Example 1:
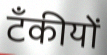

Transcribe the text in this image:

टँकीयों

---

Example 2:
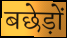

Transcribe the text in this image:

बछेड़ों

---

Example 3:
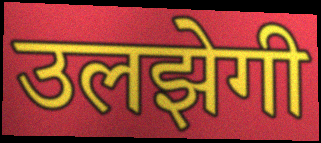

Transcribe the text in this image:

उलझेगी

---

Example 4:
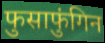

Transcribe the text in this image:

फुसाफुंगिन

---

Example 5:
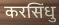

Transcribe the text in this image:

करसिंधु